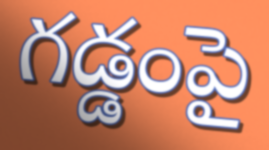
గడ్డంపై